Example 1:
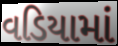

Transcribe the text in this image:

વડિયામાં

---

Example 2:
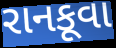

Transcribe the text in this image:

રાનકૂવા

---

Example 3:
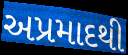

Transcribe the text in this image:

અપ્રમાદથી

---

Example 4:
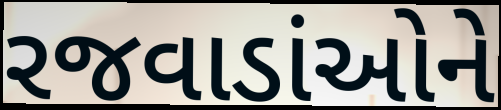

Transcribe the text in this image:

રજવાડાંઓને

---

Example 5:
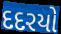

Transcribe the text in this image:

દદરયો